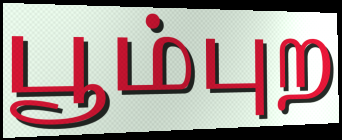
பூம்புற